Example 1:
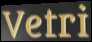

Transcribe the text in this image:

Vetri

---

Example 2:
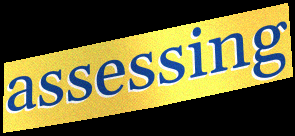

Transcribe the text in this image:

assessing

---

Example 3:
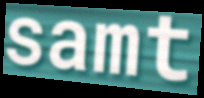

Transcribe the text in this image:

samt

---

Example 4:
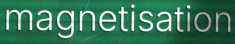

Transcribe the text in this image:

magnetisation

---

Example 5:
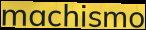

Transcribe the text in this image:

machismo